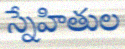
స్నేహితుల